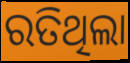
ରତିଥିଲା